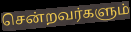
சென்றவர்களும்